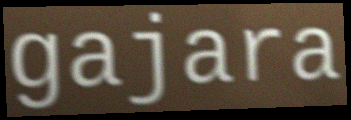
gajara